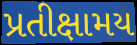
પ્રતીક્ષામય